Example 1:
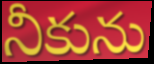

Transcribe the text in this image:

నీకును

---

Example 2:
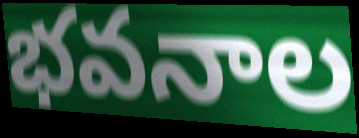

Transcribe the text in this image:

భవనాల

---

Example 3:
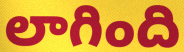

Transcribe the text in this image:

లాగింది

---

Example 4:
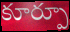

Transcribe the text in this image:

కూర్పూ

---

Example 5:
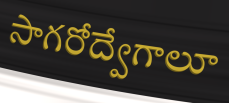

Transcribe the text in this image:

సాగరోద్వేగాలూ